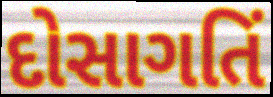
દોસાગતિં